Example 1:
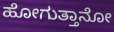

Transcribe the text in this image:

ಹೋಗುತ್ತಾನೋ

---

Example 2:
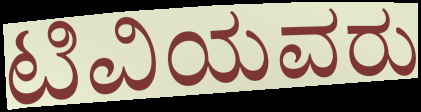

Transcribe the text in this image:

ಟಿವಿಯವರು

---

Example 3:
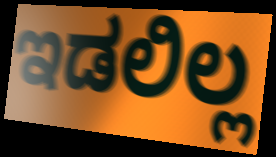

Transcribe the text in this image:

ಇಡಲಿಲ್ಲ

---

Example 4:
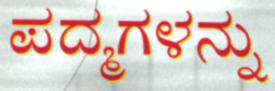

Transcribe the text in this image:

ಪದ್ಮಗಳನ್ನು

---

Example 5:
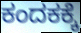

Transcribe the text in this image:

ಕಂದಕಕ್ಕೆ